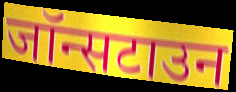
जॉन्सटाउन